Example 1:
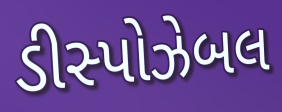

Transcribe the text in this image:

ડીસ્પોઝેબલ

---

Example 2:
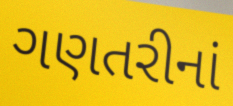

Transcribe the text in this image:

ગણતરીનાં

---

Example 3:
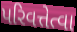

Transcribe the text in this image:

પરિવત્તેત્વા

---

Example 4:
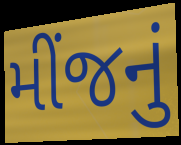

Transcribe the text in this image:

મીંજનું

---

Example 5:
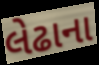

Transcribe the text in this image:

લેઢાના